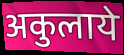
अकुलाये